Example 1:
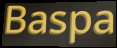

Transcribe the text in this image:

Baspa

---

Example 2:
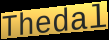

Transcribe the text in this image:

Thedal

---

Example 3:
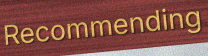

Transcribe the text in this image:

Recommending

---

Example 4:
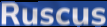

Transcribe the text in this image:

Ruscus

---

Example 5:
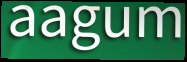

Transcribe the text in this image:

aagum